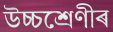
উচ্চশ্ৰেণীৰ